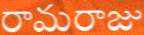
రామరాజు